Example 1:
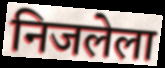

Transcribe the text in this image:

निजलेला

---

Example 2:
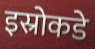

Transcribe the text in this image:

इस्रोकडे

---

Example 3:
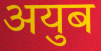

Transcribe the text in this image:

अयुब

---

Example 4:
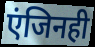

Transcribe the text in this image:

एंजिनही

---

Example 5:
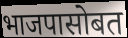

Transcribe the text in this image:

भाजपासोबत